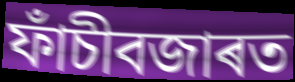
ফাঁচীবজাৰত